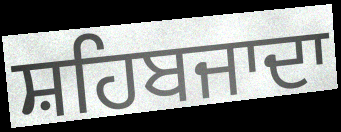
ਸ਼ਹਿਬਜਾਦਾ